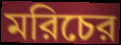
মরিচের